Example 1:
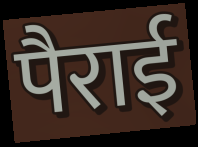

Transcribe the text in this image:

पैराई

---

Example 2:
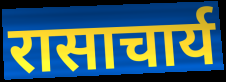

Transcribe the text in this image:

रासाचार्य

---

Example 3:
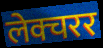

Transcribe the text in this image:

लेक्‍चरर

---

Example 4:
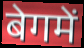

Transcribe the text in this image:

बेगमें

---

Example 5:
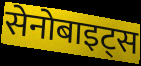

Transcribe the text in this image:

सेनोबाइट्स